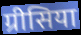
ग्रीसिया